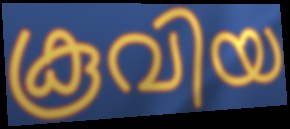
കൂവിയ